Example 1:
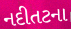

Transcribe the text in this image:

નદીતટના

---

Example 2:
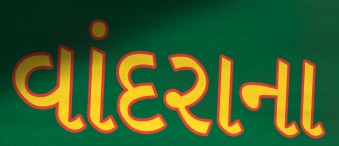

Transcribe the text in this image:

વાંદરાના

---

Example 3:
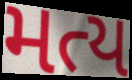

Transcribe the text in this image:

મત્ય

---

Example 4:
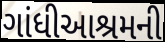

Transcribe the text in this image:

ગાંધીઆશ્રમની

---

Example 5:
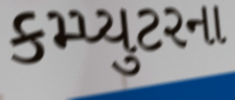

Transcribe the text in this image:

કમ્પ્યુટરના